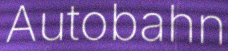
Autobahn